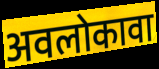
अवलोकावा